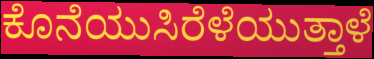
ಕೊನೆಯುಸಿರೆಳೆಯುತ್ತಾಳೆ